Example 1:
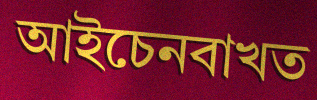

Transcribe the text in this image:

আইচেনবাখত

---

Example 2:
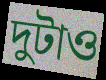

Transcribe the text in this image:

দুটাও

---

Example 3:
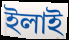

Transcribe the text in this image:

ইলাই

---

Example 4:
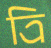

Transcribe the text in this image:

ত্ৰি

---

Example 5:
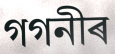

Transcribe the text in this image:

গগনীৰ